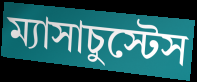
ম্যাসাচুস্টেস